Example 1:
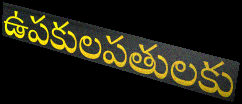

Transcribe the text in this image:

ఉపకులపతులకు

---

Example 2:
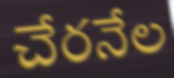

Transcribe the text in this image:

చేరనేల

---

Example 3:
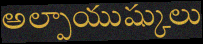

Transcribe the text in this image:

అల్పాయుష్కులు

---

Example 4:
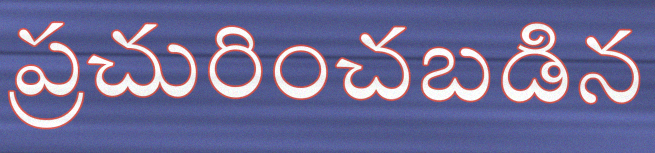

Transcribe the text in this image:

ప్రచురించబడిన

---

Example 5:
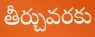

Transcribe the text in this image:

తీర్చువరకు